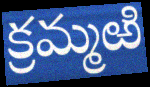
క్రమ్మఱి